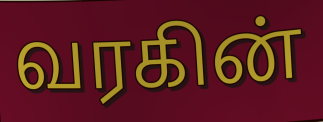
வரகின்